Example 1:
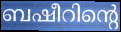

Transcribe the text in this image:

ബഷീറിന്റെ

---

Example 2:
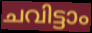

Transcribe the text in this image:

ചവിട്ടാം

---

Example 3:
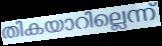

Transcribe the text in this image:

തികയാറില്ലെന്ന്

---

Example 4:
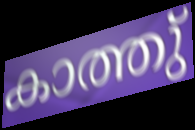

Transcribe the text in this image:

കാത്തു്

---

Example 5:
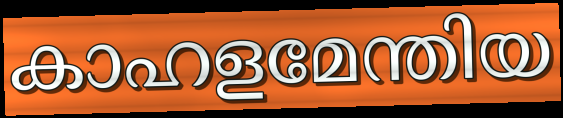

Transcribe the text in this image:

കാഹളമേന്തിയ